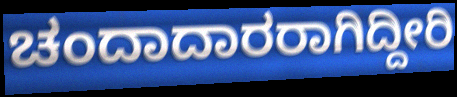
ಚಂದಾದಾರರಾಗಿದ್ದೀರಿ